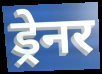
ड्रेनर